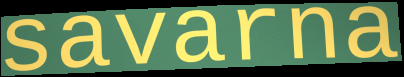
savarna